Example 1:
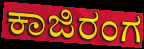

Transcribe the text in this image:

ಕಾಜಿರಂಗ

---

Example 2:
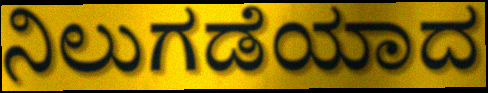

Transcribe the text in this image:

ನಿಲುಗಡೆಯಾದ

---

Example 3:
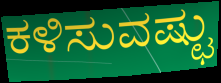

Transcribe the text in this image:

ಕಳಿಸುವಷ್ಟು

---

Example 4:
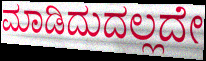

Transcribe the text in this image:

ಮಾಡಿದುದಲ್ಲದೇ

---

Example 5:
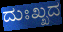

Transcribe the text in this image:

ದುಃಖ್ಖದ